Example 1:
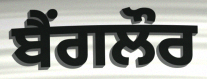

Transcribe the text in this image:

ਬੈਂਗਲੌਰ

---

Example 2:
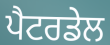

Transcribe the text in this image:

ਪੈਟਰਡੇਲ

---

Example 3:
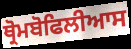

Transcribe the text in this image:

ਥ੍ਰੋਮਬੋਫਿਲੀਆਸ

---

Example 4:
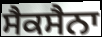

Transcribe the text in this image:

ਸੈਕਸੈਨਾ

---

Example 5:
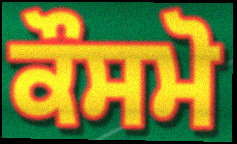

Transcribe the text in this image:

ਕੌਸਮੋ